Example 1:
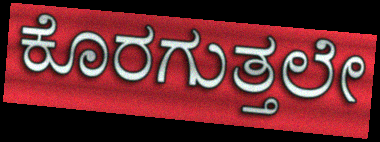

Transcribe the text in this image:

ಕೊರಗುತ್ತಲೇ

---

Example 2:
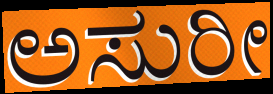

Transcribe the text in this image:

ಅಸುರೀ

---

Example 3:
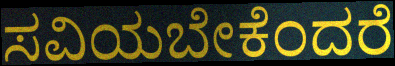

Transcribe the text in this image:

ಸವಿಯಬೇಕೆಂದರೆ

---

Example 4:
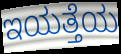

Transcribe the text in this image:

ಇಯತ್ತೆಯ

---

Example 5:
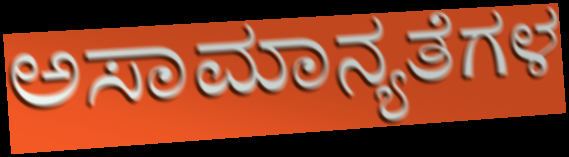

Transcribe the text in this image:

ಅಸಾಮಾನ್ಯತೆಗಳ